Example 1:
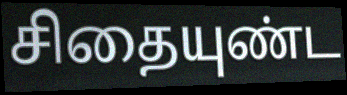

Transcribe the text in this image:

சிதையுண்ட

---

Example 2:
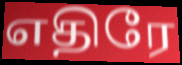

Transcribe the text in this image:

எதிரே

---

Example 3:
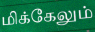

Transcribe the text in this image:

மிக்கேலும்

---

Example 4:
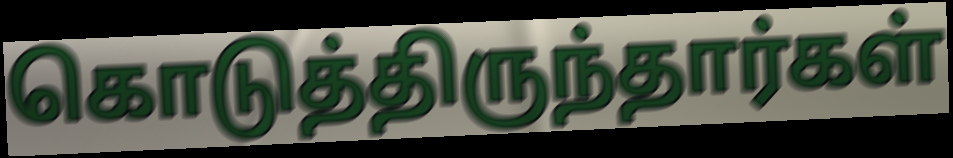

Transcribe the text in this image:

கொடுத்திருந்தார்கள்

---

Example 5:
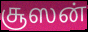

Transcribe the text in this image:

சூஸன்